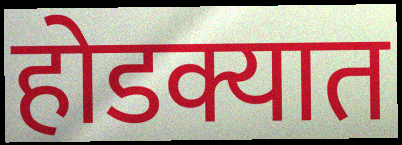
होडक्यात